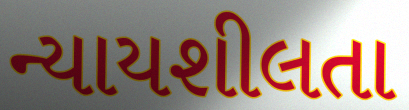
ન્યાયશીલતા